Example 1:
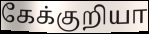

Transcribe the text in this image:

கேக்குறியா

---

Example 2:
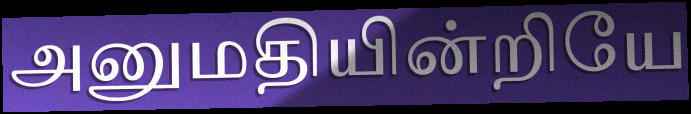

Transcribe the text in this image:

அனுமதியின்றியே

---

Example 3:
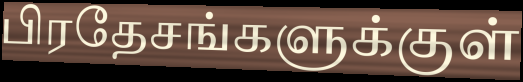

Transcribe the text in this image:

பிரதேசங்களுக்குள்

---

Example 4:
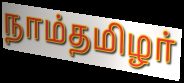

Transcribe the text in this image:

நாம்தமிழர்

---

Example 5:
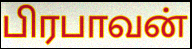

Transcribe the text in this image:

பிரபாவன்